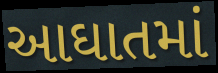
આઘાતમાં